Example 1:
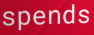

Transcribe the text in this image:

spends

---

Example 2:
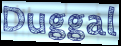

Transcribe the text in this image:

Duggal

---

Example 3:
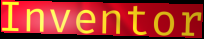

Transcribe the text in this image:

Inventor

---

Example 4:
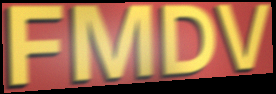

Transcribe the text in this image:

FMDV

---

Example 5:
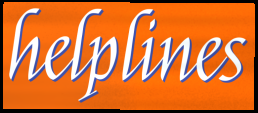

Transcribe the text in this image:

helplines